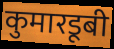
कुमारडूबी